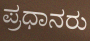
ಪ್ರಧಾನರು